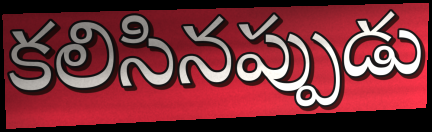
కలిసినప్పుడు